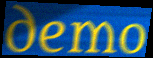
demo